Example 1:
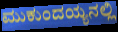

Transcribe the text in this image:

ಮುಕುಂದಯ್ಯನಲ್ಲಿ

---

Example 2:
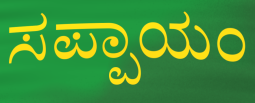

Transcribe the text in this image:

ಸಪ್ಪಾಯಂ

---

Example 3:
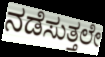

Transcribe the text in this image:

ನಡೆಸುತ್ತಲೇ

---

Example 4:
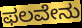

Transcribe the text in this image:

ಫಲವೇನು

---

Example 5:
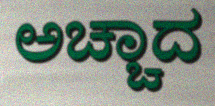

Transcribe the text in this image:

ಅಚ್ಚಾದ